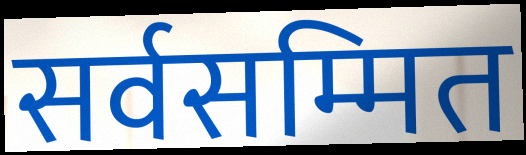
सर्वसम्मित